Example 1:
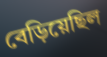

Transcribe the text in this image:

বেড়িয়েছিল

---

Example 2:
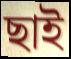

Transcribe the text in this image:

ছাই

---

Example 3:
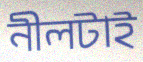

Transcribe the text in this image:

নীলটাই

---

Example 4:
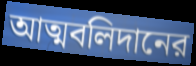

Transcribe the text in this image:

আত্মবলিদানের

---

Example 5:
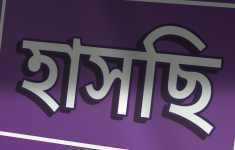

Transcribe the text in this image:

হাসছি